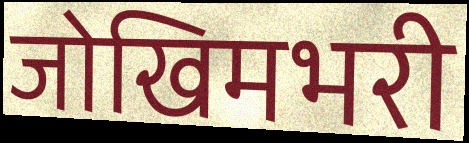
जोखिमभरी